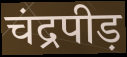
चंद्रपीड़